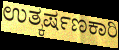
ಉತ್ಕರ್ಷಣಕಾರಿ